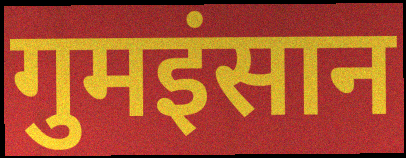
गुमइंसान